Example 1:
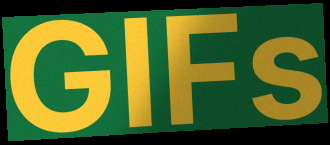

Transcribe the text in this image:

GIFs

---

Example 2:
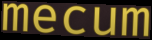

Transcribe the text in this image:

mecum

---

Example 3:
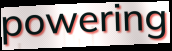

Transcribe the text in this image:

powering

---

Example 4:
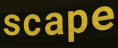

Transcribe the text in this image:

scape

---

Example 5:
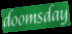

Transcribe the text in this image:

doomsday